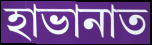
হাভানাত